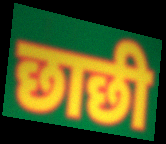
छाछी